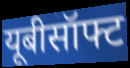
यूबीसॉफ्ट